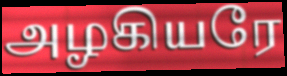
அழகியரே